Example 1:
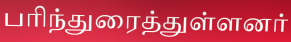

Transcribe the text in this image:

பரிந்துரைத்துள்ளனர்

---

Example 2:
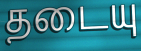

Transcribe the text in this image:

தடையு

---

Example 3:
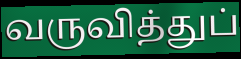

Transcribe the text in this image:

வருவித்துப்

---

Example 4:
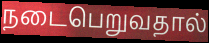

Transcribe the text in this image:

நடைபெறுவதால்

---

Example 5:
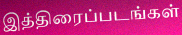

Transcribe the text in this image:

இத்திரைப்படங்கள்